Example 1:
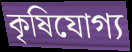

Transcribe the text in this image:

কৃষিযোগ্য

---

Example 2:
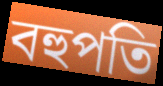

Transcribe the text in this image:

বহুপতি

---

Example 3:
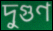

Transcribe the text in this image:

দুগুণ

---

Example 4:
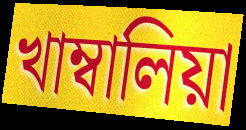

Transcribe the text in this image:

খাম্বালিয়া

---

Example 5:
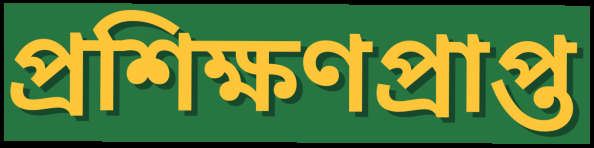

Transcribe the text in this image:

প্ৰশিক্ষণপ্ৰাপ্ত